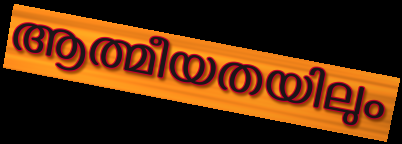
ആത്മീയതയിലും